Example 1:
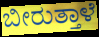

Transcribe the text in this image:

ಬೀರುತ್ತಾಳೆ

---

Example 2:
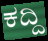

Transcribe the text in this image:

ಕದ್ದಿ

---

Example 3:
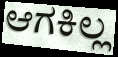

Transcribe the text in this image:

ಆಗಕಿಲ್ಲ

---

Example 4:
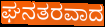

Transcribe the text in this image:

ಘನತರವಾದ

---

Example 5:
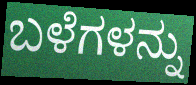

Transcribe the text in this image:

ಬಳೆಗಳನ್ನು